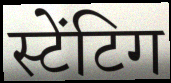
स्टेंटिग